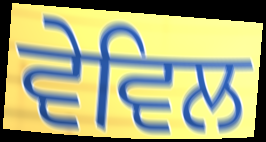
ਵੇਵਿਲ